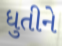
ધુતીને